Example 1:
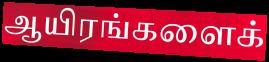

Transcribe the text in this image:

ஆயிரங்களைக்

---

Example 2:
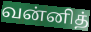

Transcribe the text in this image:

வன்னித்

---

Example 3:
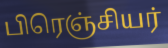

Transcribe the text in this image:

பிரெஞ்சியர்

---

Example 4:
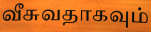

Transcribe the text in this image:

வீசுவதாகவும்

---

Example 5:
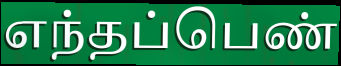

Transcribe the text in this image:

எந்தப்பெண்